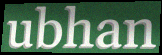
ubhan